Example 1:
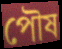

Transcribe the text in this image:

পৌষ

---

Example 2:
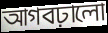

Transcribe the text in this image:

আগবঢ়ালো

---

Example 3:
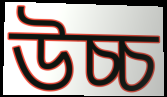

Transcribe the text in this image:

উচ্চ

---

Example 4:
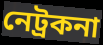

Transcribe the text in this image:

নেট্ৰকনা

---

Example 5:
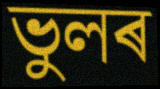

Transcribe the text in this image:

ভুলৰ